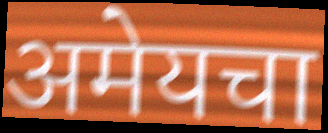
अमेयचा